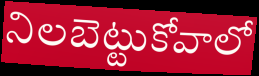
నిలబెట్టుకోవాలో